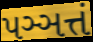
પઞ્ઞત્તં